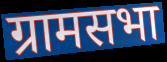
ग्रामसभा